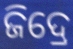
ଜିଦ୍ରେ